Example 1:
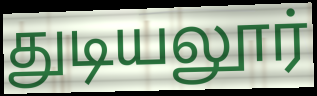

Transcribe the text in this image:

துடியலூர்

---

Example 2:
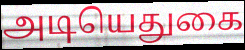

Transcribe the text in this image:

அடியெதுகை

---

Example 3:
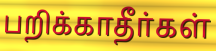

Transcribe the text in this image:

பறிக்காதீர்கள்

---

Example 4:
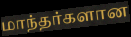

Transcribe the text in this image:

மாந்தர்களான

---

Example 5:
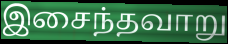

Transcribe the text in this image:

இசைந்தவாறு